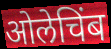
ओलेचिंब